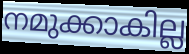
നമുക്കാകില്ല